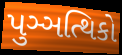
પુઞ્ઞત્થિકો